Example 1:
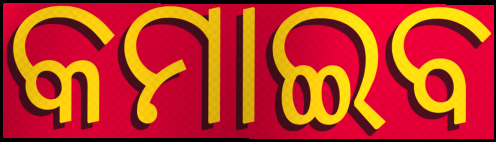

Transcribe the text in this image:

କମାଇବ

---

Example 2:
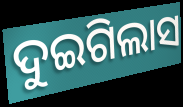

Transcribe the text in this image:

ଦୁଇଗିଲାସ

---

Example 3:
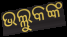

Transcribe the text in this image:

ଭଲ୍ଲୁକଙ୍କ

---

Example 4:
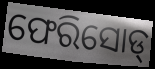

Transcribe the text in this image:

ଫେରିସୋଡ୍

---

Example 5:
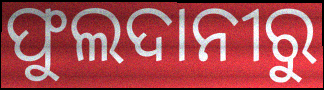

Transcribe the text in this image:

ଫୁଲଦାନୀରୁ